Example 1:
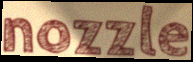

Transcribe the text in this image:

nozzle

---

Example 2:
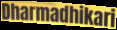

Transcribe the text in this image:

Dharmadhikari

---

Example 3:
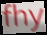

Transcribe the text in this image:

fhy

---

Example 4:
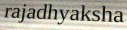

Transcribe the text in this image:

rajadhyaksha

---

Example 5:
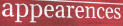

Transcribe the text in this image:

appearences